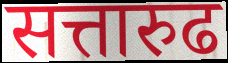
सत्तारुढ